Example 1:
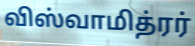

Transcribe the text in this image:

விஸ்வாமித்ரர்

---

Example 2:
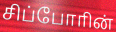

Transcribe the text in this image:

சிப்போரின்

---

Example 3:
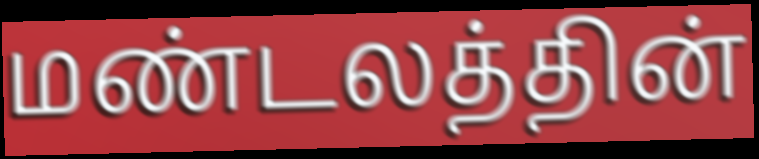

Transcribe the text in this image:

மண்டலத்தின்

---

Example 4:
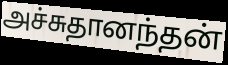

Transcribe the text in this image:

அச்சுதானந்தன்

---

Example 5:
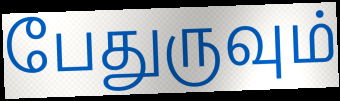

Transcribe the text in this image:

பேதுருவும்